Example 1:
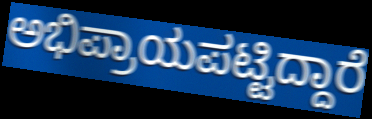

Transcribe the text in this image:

ಅಭಿಪ್ರಾಯಪಟ್ಟಿದ್ದಾರೆ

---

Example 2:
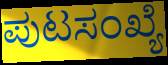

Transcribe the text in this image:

ಪುಟಸಂಖ್ಯೆ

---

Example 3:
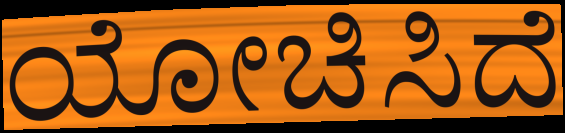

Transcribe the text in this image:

ಯೋಚಿಸಿದೆ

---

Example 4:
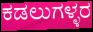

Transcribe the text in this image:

ಕಡಲುಗಳ್ಳರ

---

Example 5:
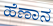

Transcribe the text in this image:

ಹೆಣಾನ